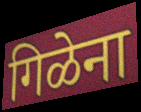
गिळेना